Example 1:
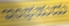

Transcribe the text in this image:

ಇಂಥಹುದು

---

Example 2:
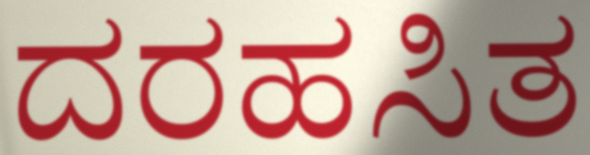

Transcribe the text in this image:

ದರಹಸಿತ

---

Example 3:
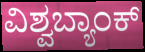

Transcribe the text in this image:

ವಿಶ್ವಬ್ಯಾಂಕ್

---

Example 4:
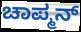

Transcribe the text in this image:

ಚಾಪ್ಮನ್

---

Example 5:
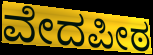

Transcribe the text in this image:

ವೇದಪೀಠ